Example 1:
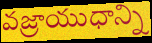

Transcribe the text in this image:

వజ్రాయుధాన్ని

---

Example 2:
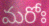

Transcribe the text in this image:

మరోః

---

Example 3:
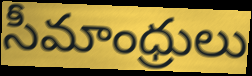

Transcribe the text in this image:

సీమాంధ్రులు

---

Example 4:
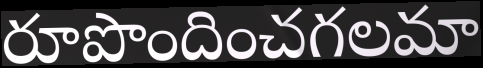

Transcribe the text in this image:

రూపొందించగలమా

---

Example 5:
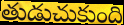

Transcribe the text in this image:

తుడుచుకుంది